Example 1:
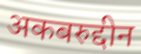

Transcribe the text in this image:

अकबरुद्दीन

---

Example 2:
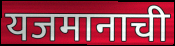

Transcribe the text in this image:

यजमानाची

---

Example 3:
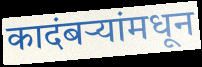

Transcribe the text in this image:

कादंबर्‍यांमधून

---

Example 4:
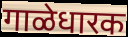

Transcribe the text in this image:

गाळेधारक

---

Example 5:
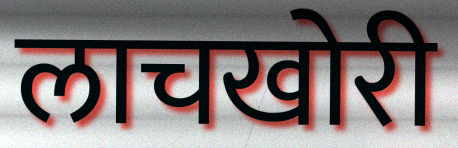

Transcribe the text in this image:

लाचखोरी